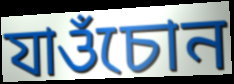
যাওঁচোন